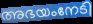
അഭയംനേടി